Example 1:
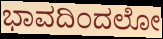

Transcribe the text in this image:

ಭಾವದಿಂದಲೋ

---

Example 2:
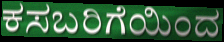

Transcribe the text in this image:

ಕಸಬರಿಗೆಯಿಂದ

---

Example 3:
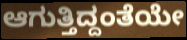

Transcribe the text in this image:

ಆಗುತ್ತಿದ್ದಂತೆಯೇ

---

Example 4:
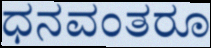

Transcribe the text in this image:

ಧನವಂತರೂ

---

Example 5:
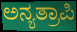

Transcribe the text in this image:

ಅನ್ಯತ್ರಾಪಿ